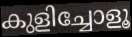
കുളിച്ചോളൂ